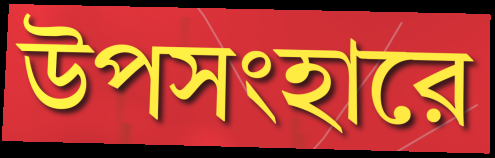
উপসংহারে